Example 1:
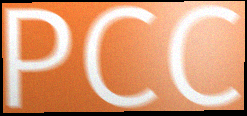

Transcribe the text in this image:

PCC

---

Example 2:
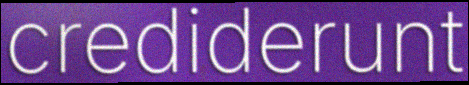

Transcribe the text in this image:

crediderunt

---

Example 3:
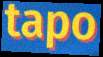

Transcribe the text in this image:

tapo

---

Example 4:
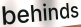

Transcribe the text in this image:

behinds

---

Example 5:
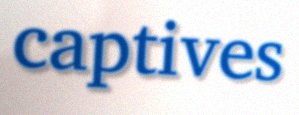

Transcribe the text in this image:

captives